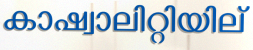
കാഷ്വാലിറ്റിയില്